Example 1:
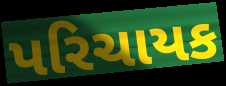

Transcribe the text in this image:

પરિચાયક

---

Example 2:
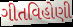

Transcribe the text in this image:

ગીતવિહોણી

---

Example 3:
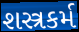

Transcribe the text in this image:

શસ્ત્રકર્મ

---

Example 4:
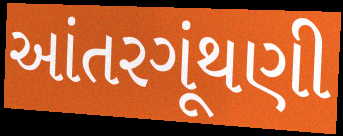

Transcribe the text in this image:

આંતરગૂંથણી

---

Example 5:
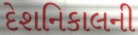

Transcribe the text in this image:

દેશનિકાલની